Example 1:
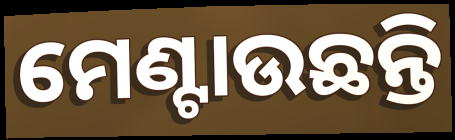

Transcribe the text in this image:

ମେଣ୍ଟାଉଛନ୍ତି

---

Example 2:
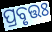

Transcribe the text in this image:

ପ୍ରବୃତ୍ତଃ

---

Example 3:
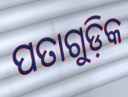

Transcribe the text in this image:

ପତାଗୁଡ଼ିକ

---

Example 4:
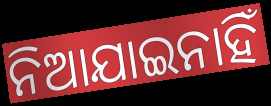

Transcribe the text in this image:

ନିଆଯାଇନାହିଁ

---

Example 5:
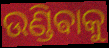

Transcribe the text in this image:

ଉଣ୍ଡିଵାକୁ